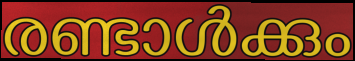
രണ്ടാൾക്കും